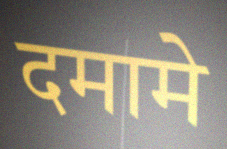
दमामे